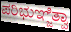
ಪರಿಭುಞ್ಜಿತ್ವಾ